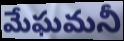
మేఘమనీ